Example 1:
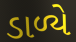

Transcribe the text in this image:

ડાળ્યે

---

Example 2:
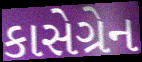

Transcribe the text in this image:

કાસેગ્રેન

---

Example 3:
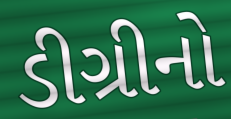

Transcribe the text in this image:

ડીગ્રીનો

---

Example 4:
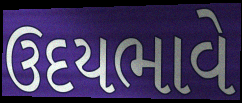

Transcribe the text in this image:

ઉદયભાવે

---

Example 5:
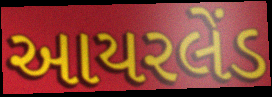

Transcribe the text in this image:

આયરલેંડ